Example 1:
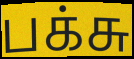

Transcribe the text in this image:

பக்சு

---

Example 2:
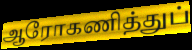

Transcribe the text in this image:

ஆரோகணித்துப்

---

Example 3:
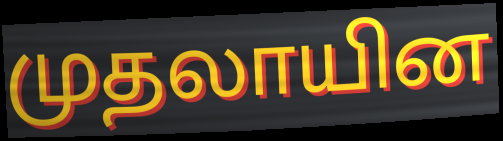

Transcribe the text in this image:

முதலாயின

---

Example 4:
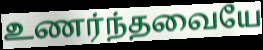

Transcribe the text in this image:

உணர்ந்தவையே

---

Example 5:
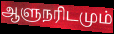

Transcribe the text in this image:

ஆளுநரிடமும்